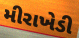
મીરાખેડી